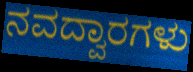
ನವದ್ವಾರಗಳು